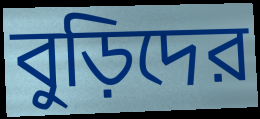
বুড়িদের